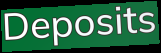
Deposits